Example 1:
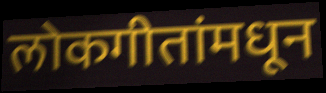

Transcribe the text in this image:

लोकगीतांमधून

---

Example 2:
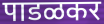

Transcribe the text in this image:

पाडळकर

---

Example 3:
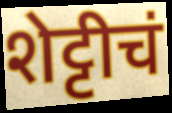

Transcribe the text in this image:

शेट्टीचं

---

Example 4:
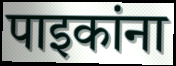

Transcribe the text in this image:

पाइकांना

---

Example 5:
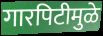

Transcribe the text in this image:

गारपिटीमुळे